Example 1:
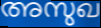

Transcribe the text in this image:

അസുഖ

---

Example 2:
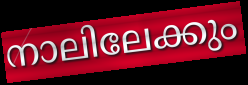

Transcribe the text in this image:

നാലിലേക്കും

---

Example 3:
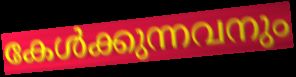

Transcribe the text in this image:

കേൾക്കുന്നവനും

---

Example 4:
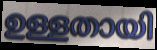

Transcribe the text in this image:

ഉള്ളതായി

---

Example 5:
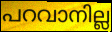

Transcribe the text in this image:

പറവാനില്ല